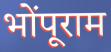
भोंपूराम